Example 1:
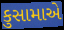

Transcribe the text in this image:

કુસામાએ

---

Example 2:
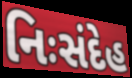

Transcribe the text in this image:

નિઃસંદેહ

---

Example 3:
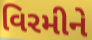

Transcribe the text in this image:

વિરમીને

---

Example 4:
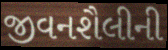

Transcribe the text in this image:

જીવનશૈલીની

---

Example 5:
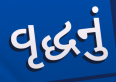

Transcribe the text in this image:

વૃદ્ધનું